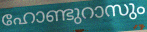
ഹോണ്ടുറാസും